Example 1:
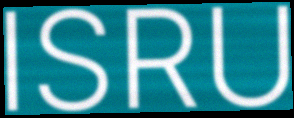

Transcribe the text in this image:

ISRU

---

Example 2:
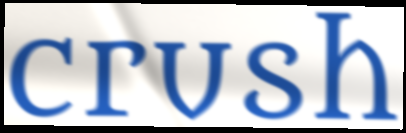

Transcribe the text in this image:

crush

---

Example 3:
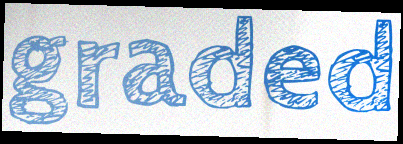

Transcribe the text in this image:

graded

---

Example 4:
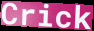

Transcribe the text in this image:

Crick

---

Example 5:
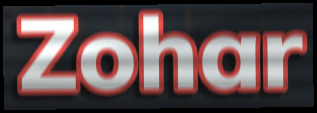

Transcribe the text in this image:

Zohar